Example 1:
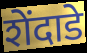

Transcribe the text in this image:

शेंदाडे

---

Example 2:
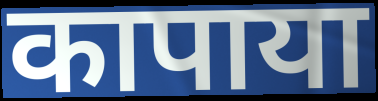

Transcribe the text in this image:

कापाया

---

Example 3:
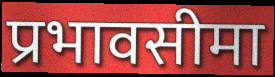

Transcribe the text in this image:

प्रभावसीमा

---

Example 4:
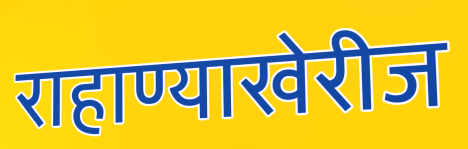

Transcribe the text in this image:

राहाण्याखेरीज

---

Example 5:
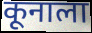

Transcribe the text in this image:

कूनाला